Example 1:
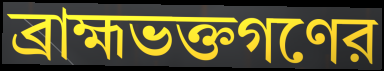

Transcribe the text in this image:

ব্রাহ্মভক্তগণের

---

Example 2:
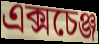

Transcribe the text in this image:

এক্সচেঞ্জ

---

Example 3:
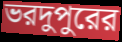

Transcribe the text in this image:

ভরদুপুরের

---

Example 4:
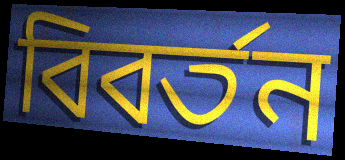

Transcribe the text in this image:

বিবর্তন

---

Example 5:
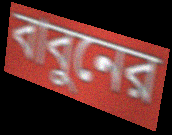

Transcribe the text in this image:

বাবুনের